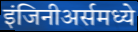
इंजिनीअर्समध्ये